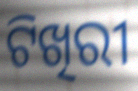
ଟିଖିରୀ